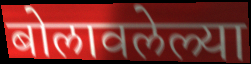
बोलावलेल्या